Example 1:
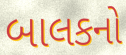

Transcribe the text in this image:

બાલકનો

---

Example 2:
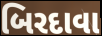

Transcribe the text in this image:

બિરદાવા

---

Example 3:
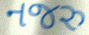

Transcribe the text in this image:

નજરુ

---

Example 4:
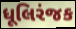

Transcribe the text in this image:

ધૂલિરંજક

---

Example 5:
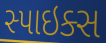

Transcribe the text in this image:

સ્પાઇક્સ